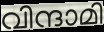
വിന്ദാമി